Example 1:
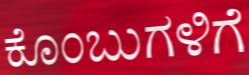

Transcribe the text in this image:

ಕೊಂಬುಗಳಿಗೆ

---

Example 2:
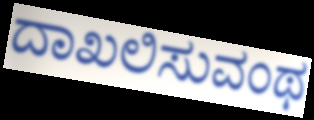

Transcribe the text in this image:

ದಾಖಲಿಸುವಂಥ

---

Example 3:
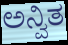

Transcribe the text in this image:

ಅನ್ವಿತ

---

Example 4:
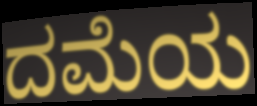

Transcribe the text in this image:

ದಮೆಯ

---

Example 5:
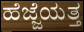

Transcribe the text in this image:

ಹೆಜ್ಜೆಯತ್ತ